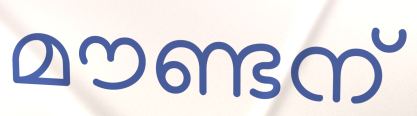
മൗണ്ടന്